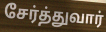
சேர்த்துவார்